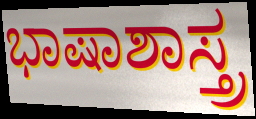
ಭಾಷಾಶಾಸ್ತ್ರ